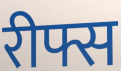
रीफ्स